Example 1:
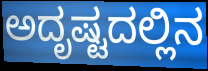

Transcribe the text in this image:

ಅದೃಷ್ಟದಲ್ಲಿನ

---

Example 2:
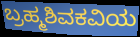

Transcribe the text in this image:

ಬ್ರಹ್ಮಶಿವಕವಿಯ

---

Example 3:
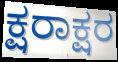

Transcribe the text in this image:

ಕ್ಷರಾಕ್ಷರ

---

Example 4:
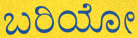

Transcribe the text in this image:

ಬರಿಯೋ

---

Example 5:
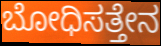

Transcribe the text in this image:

ಬೋಧಿಸತ್ತೇನ